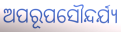
ଅପରୂପସୌନ୍ଦର୍ଯ୍ୟ